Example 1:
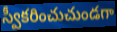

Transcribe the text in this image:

స్వీకరించుచుండగా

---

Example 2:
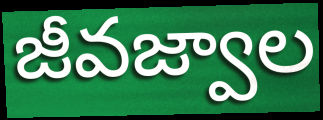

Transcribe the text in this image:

జీవజ్వాల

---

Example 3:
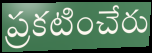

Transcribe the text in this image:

ప్రకటించేరు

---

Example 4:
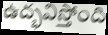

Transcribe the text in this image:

ఉద్భవిస్తోంది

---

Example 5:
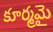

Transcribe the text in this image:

కూర్మమై